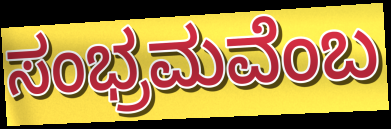
ಸಂಭ್ರಮವೆಂಬ